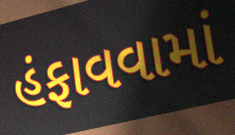
હંફાવવામાં